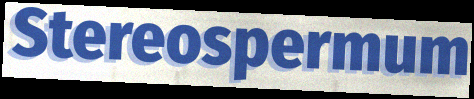
Stereospermum